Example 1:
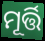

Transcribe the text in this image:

ମୂର୍ତ୍ତି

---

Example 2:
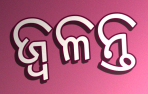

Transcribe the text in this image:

ଜ୍ବଳନ୍ତ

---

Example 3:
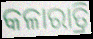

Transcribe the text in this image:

କଳାରାତ୍ରି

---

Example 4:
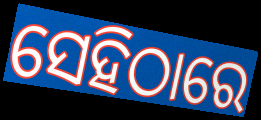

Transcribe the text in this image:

ସେହିଠାରେ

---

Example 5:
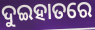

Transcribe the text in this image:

ଦୁଇହାତରେ